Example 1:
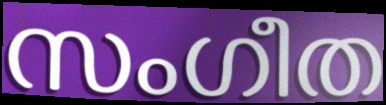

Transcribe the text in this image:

സംഗീത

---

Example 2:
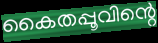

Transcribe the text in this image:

കൈതപ്പൂവിന്റെ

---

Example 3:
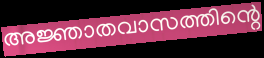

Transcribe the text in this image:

അജ്ഞാതവാസത്തിന്റെ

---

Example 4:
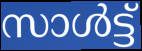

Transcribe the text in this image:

സാൾട്ട്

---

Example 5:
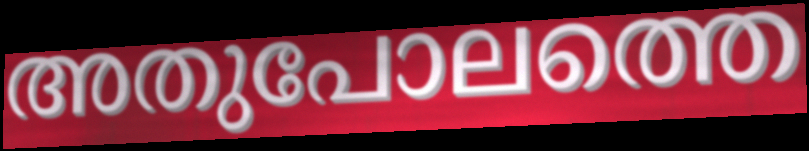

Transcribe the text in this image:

അതുപോലത്തെ